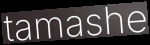
tamashe